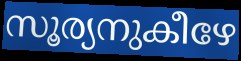
സൂര്യനുകീഴേ